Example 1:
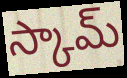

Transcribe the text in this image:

స్కామ్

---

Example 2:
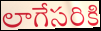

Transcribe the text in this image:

లాగేసరికి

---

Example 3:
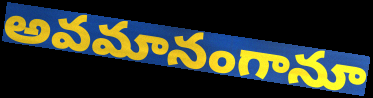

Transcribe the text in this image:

అవమానంగానూ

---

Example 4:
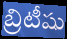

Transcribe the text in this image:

బ్రిటీషు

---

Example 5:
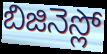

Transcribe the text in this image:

బిజినెస్లో